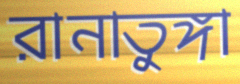
রানাতুঙ্গা